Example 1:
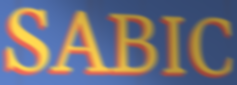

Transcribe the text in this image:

SABIC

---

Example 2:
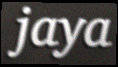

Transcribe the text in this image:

jaya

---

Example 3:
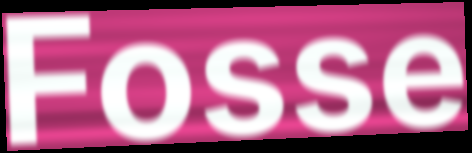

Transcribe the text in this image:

Fosse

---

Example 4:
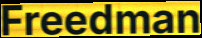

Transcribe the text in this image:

Freedman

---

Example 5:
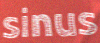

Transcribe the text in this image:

sinus